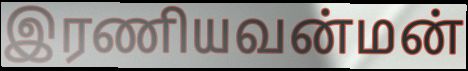
இரணியவன்மன்